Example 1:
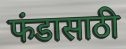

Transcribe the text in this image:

फंडासाठी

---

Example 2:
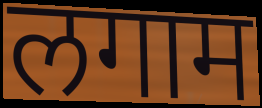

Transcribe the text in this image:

लगाम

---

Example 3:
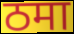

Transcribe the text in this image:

ठमा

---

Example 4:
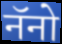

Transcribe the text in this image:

नॅनो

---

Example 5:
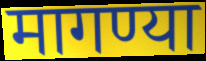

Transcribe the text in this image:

मागण्या